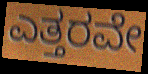
ಎತ್ತರವೇ